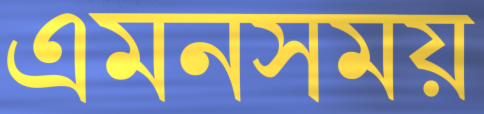
এমনসময়